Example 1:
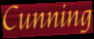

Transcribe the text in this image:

Cunning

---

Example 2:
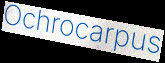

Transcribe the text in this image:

Ochrocarpus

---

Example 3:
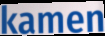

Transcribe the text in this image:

kamen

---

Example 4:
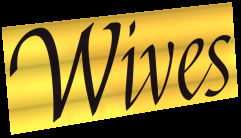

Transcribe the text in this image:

Wives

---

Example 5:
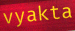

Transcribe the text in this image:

vyakta